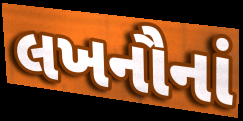
લખનૌનાં